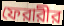
ফেরারীর